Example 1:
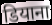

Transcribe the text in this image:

डियाना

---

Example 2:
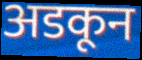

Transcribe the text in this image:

अडकून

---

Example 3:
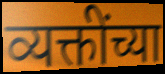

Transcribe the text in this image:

व्यक्तींच्या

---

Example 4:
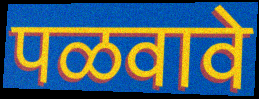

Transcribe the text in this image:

पळवावे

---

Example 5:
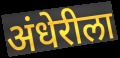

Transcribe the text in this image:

अंधेरीला